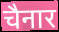
चैनार